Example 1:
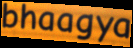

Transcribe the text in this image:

bhaagya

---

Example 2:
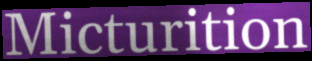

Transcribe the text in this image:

Micturition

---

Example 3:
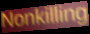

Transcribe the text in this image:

Nonkilling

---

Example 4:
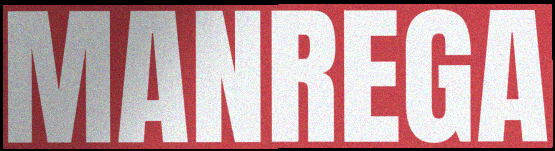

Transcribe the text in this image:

MANREGA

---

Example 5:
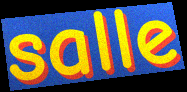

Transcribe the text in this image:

salle